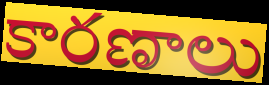
కారణాలు